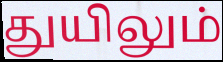
துயிலும்